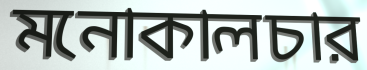
মনোকালচার